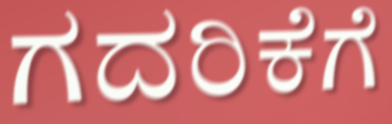
ಗದರಿಕೆಗೆ